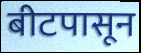
बीटपासून